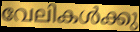
വേലികൾക്കു